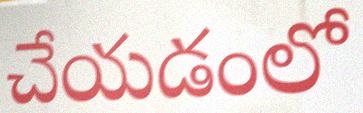
చేయడంలో